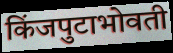
किंजपुटाभोवती